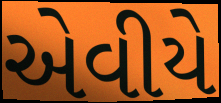
એવીયે